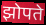
झोपते